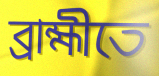
ব্রাহ্মীতে